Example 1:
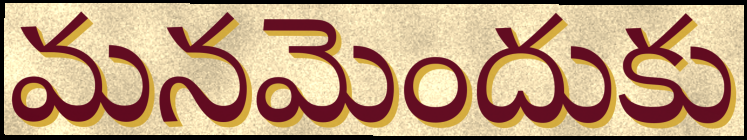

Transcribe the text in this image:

మనమెందుకు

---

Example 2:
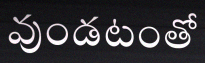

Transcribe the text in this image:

వుండటంతో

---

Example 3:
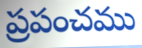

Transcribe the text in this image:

ప్రపంచము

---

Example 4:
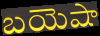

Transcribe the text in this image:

బయెషా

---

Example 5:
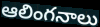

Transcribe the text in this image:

ఆలింగనాలు